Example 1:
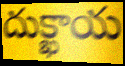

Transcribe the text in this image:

దుక్ఖాయ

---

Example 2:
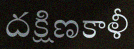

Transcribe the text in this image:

దక్షిణకాళీ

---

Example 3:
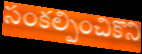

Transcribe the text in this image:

సంకల్పించికొని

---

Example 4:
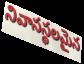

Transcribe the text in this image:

నివాసస్థలమైన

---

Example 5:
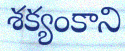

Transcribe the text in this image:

శక్యంకాని